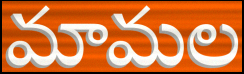
మామల